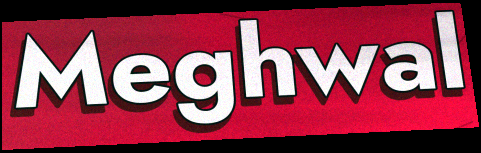
Meghwal